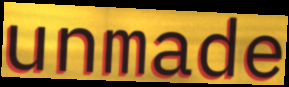
unmade